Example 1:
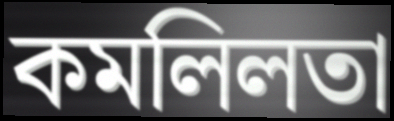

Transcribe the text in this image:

কমলিলতা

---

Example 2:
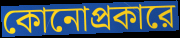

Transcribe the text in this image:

কোনোপ্রকারে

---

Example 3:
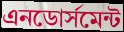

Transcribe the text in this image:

এনডোর্সমেন্ট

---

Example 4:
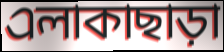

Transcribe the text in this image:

এলাকাছাড়া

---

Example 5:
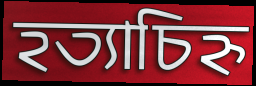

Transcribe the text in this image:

হত্যাচিহ্ন